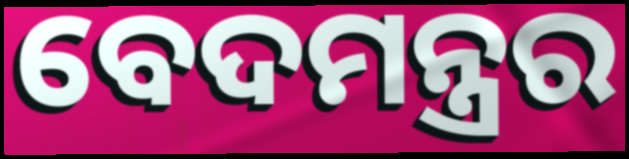
ବେଦମନ୍ତ୍ରର